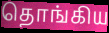
தொங்கிய